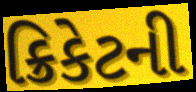
ક્રિકેટની